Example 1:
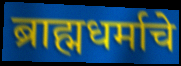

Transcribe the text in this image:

ब्राह्मधर्माचे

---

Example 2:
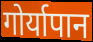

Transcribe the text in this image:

गोर्यापान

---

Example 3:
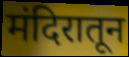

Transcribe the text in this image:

मंदिरातून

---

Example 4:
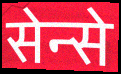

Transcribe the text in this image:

सेन्से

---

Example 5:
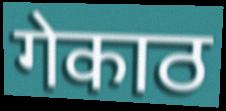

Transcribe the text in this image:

गेकाठ